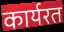
कार्यरत